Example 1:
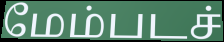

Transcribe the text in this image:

மேம்படச்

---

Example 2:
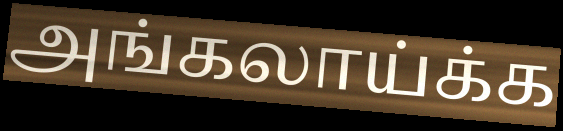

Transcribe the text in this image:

அங்கலாய்க்க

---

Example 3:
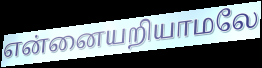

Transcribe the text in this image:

என்னையறியாமலே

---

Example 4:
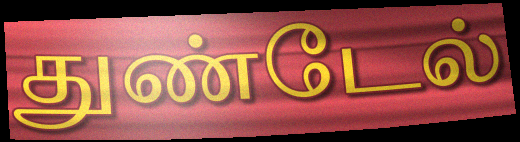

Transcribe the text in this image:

துண்டேல்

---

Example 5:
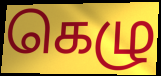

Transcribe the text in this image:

கெழு